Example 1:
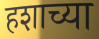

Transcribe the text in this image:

हशाच्या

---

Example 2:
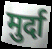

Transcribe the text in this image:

मुर्दा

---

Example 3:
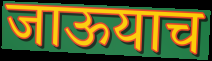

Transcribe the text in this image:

जाऊयाच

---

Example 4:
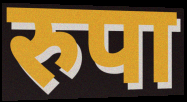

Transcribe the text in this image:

रुपा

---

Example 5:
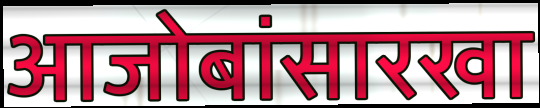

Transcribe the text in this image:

आजोबांसारखा